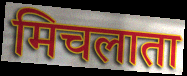
मिचलाता